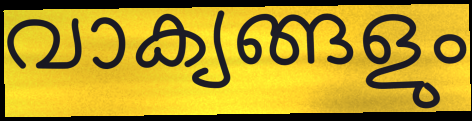
വാക്യങ്ങളും